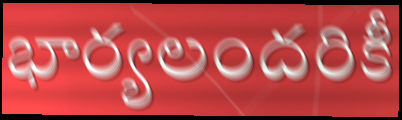
భార్యలందరికీ